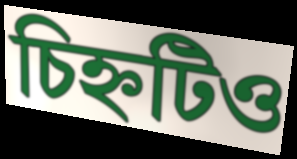
চিহ্নটিও